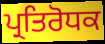
ਪ੍ਰਤਿਰੋਧਕ